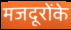
मजदूरोंके